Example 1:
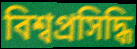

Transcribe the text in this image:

বিশ্বপ্ৰসিদ্ধি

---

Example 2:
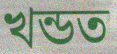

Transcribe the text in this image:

খন্ডত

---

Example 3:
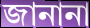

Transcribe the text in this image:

জানানা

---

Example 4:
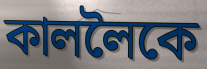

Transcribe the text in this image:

কাললৈকে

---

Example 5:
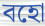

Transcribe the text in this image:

বহো